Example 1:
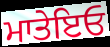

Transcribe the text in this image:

ਮਾਤੇਇਓ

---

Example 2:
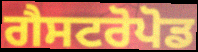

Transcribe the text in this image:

ਗੈਸਟਰੋਪੋਡ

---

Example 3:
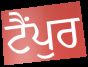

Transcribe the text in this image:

ਟੈਂਪੁਰ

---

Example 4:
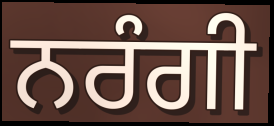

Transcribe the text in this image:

ਨਰੰਗੀ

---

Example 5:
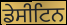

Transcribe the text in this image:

ਡੇਸੀਟਿਨ